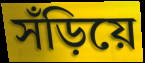
সঁড়িয়ে